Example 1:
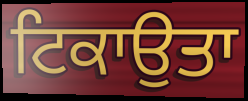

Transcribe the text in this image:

ਟਿਕਾਉਤਾ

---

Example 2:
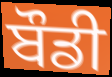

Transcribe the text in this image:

ਬੌਡੀ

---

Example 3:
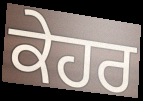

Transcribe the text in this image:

ਕੇਹਰ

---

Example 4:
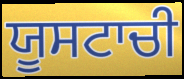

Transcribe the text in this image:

ਯੂਸਟਾਚੀ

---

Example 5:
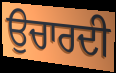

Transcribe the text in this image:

ਉਚਾਰਦੀ